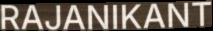
RAJANIKANT